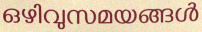
ഒഴിവുസമയങ്ങൾ